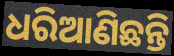
ଧରିଆଣିଛନ୍ତି